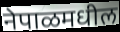
नेपाळमधील